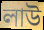
লাউ